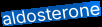
aldosterone